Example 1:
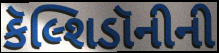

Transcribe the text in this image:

કૅલ્શિડૉનીની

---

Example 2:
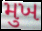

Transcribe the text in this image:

મુખ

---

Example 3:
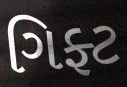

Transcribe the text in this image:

ગિફ્ટ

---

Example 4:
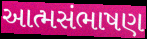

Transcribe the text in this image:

આત્મસંભાષણ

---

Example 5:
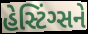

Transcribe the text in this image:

હેસ્ટિંગ્સને